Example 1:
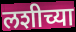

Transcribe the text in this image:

लशीच्या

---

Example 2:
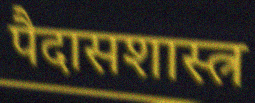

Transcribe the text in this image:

पैदासशास्त्र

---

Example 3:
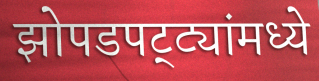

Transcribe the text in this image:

झोपडपट्ट्यांमध्ये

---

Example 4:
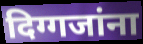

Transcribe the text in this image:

दिग्गजांना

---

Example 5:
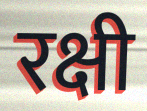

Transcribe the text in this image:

रक्षी